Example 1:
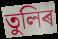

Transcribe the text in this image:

তুলিৰ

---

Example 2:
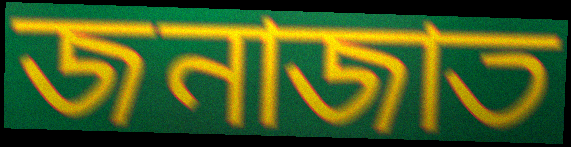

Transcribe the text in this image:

জনাজাত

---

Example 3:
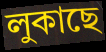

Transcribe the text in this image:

লুকাছে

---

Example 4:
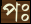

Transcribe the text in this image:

পঃ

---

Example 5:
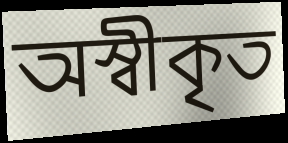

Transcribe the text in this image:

অস্বীকৃত